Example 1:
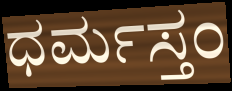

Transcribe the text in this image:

ಧರ್ಮಸ್ತಂ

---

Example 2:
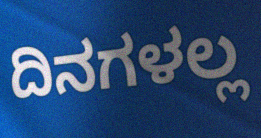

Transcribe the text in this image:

ದಿನಗಳಲ್ಲ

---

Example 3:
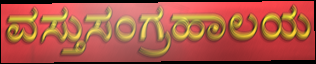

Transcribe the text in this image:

ವಸ್ತುಸಂಗ್ರಹಾಲಯ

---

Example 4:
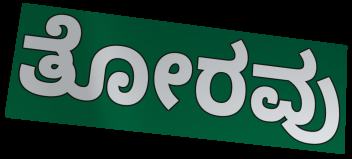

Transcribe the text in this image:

ತೋರವು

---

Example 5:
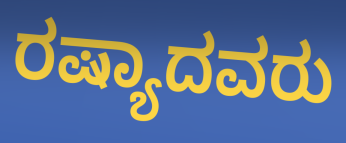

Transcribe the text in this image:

ರಷ್ಯಾದವರು